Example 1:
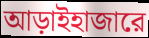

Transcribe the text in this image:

আড়াইহাজারে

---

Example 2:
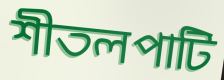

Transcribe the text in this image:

শীতলপাটি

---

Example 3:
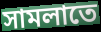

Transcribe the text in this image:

সামলাতে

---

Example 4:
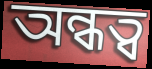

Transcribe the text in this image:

অন্ধত্ব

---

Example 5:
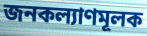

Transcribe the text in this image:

জনকল্যাণমূলক